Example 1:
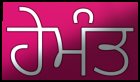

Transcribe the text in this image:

ਹੇਮੰਤ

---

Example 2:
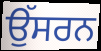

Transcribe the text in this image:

ਉੱਸਰਨ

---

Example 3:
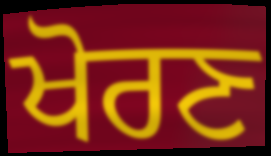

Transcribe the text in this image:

ਖੋਰਣ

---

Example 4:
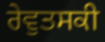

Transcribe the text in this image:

ਰੇਵੁਤਸਕੀ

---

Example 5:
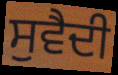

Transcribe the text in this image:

ਸੁਵੈਦੀ